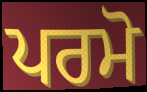
ਪਰਮੋ